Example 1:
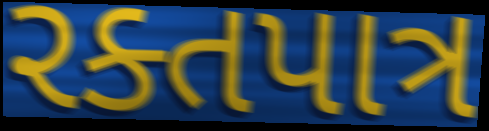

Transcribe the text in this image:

રક્તપાત્ર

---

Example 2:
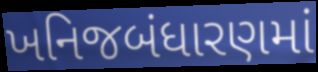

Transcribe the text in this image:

ખનિજબંધારણમાં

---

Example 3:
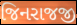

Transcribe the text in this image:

જિનરાજજી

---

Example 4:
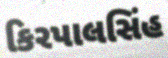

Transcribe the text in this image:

કિરપાલસિંહ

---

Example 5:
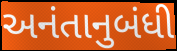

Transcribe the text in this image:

અનંતાનુબંધી